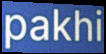
pakhi